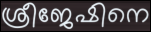
ശ്രീജേഷിനെ